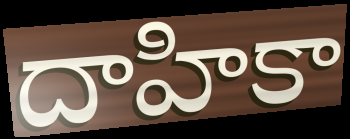
దాహికా